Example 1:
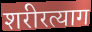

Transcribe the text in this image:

शरीरत्याग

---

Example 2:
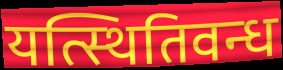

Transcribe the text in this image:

यत्स्थितिवन्ध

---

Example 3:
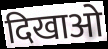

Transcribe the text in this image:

दिखाओ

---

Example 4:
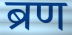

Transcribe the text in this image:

ब्रण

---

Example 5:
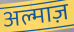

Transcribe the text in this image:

अल्माज़